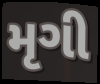
મૃગી